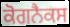
ਕੋਗਨੈਕਸ